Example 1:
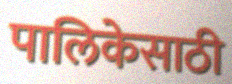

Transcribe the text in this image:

पालिकेसाठी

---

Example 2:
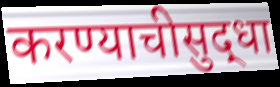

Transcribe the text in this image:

करण्याचीसुद्धा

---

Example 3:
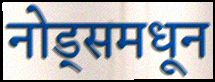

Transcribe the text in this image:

नोड्समधून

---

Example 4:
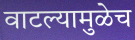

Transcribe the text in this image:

वाटल्यामुळेच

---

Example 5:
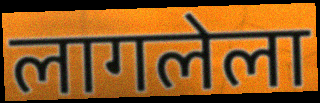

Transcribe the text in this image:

लागलेला